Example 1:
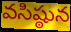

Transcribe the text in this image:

వసిష్ఠున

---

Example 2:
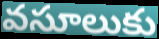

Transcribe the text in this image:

వసూలుకు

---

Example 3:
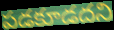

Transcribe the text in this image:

పడకూడదని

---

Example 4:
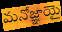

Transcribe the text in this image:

మనోజ్ఞాయై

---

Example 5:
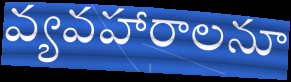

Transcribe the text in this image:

వ్యవహారాలనూ